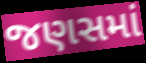
જણસમાં